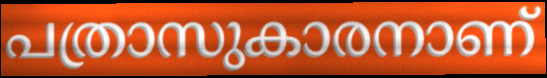
പത്രാസുകാരനാണ്